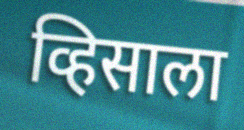
व्हिसाला